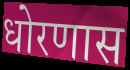
धोरणास